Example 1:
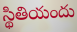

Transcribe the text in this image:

స్థితియందు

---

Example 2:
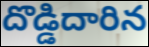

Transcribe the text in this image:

దొడ్డిదారిన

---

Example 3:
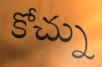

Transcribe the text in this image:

కోచ్ను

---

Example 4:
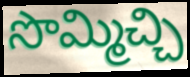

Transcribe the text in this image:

సొమ్మిచ్చి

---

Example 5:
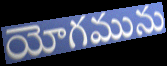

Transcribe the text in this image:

యోగమును